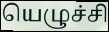
யெழுச்சி